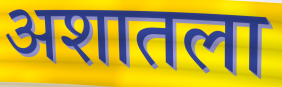
अशातला